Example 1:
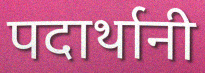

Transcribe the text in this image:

पदार्थानी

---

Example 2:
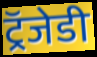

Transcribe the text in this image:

ट्रॅजेडी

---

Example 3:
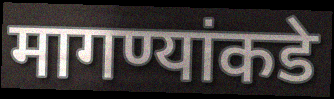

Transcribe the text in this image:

मागण्यांकडे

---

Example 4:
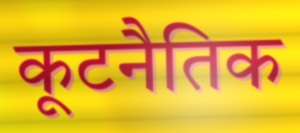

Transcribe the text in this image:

कूटनैतिक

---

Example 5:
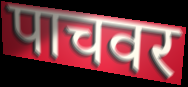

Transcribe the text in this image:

पाचवर